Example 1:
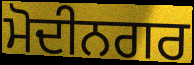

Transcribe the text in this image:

ਮੋਦੀਨਗਰ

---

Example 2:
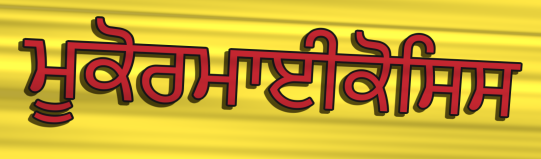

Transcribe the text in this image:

ਮੂਕੋਰਮਾਈਕੋਸਿਸ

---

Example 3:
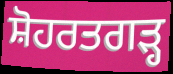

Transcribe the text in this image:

ਸ਼ੋਹਰਤਗੜ੍ਹ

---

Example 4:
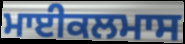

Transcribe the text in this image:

ਮਾਈਕਲਮਾਸ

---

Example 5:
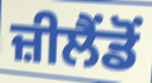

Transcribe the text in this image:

ਜ਼ੀਲੈਂਡੋਂ